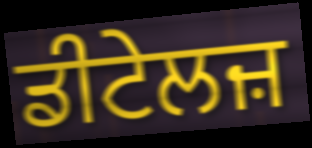
ਡੀਟੇਲਜ਼